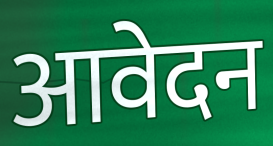
आवेदन